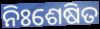
ନିଃଶେଷିତ